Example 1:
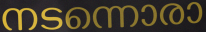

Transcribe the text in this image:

നടന്നൊരാ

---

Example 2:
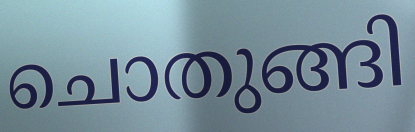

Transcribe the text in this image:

ചൊതുങ്ങി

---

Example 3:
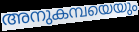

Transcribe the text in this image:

അനുകമ്പയെയും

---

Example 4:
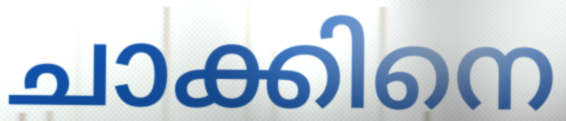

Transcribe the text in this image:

ചാക്കിനെ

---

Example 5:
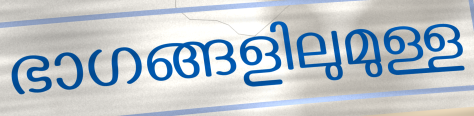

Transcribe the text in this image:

ഭാഗങ്ങളിലുമുള്ള